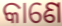
କାଣେ